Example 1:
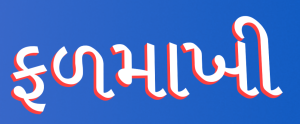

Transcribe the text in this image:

ફળમાખી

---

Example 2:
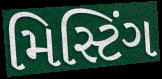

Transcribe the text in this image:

મિસ્ટિંગ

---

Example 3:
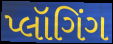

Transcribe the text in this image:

પ્લૉગિંગ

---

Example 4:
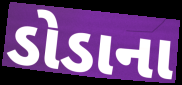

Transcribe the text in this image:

ડોડાના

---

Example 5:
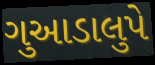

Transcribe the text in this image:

ગુઆડાલુપે